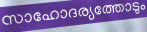
സാഹോദര്യത്തോടും